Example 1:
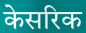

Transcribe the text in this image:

केसरिक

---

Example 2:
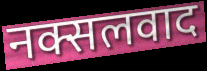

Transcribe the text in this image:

नक्सलवाद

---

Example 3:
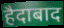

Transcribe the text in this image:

हैदाबाद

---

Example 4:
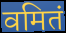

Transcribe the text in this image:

वमितं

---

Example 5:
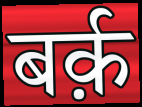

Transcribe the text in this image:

बर्क़